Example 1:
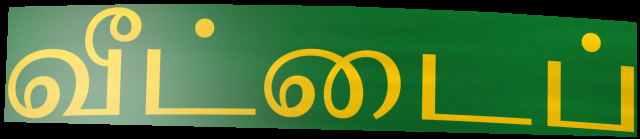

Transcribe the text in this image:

வீட்டைப்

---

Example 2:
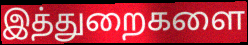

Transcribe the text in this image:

இத்துறைகளை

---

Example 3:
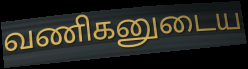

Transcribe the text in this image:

வணிகனுடைய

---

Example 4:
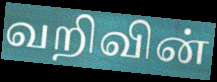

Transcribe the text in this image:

வறிவின்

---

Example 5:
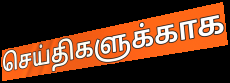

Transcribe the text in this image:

செய்திகளுக்காக